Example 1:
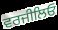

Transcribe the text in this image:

ਵਰਜੀਲਿਓ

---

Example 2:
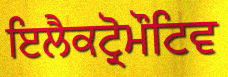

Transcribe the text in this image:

ਇਲੈਕਟ੍ਰੋਮੌਟਿਵ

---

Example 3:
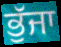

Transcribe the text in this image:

ਭੁੱਜਾ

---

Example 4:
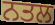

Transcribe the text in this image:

ਨਤਲ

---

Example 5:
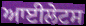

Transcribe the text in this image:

ਆਈਲੇਟਸ